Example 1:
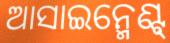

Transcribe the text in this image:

ଆସାଇନ୍ମେଣ୍ଟ୍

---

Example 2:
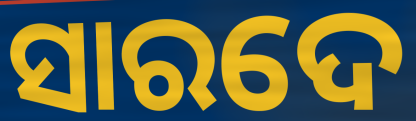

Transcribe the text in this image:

ସାରଦେ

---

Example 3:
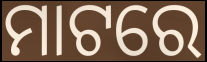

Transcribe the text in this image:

ମାଟରେ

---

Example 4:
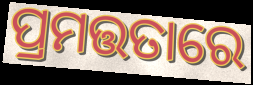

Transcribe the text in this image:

ପ୍ରମତ୍ତତାରେ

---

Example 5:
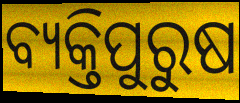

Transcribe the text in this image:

ବ୍ୟକ୍ତିପୁରୁଷ